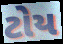
ટોય